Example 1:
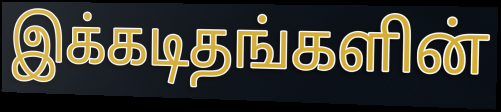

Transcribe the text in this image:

இக்கடிதங்களின்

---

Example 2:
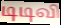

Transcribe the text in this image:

டிடிவி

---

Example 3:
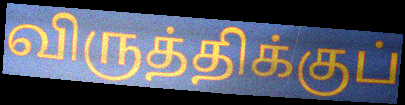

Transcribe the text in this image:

விருத்திக்குப்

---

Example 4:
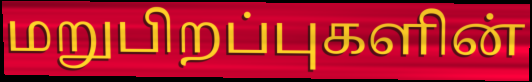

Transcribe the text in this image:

மறுபிறப்புகளின்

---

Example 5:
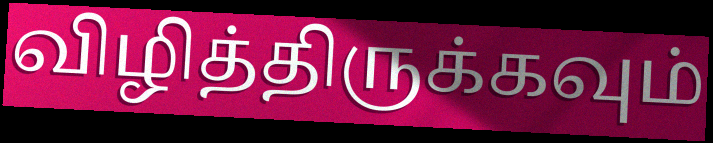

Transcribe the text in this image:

விழித்திருக்கவும்